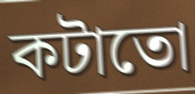
কটাতো